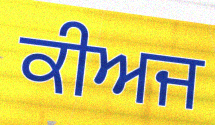
ਕੀਅਜ